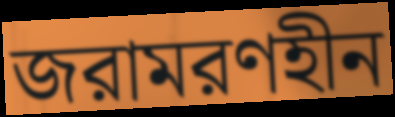
জরামরণহীন